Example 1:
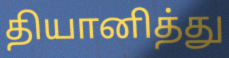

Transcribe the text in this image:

தியானித்து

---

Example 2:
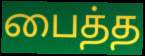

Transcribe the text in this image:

பைத்த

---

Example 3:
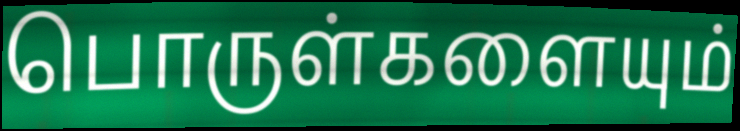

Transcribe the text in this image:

பொருள்களையும்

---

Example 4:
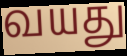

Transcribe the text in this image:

வயது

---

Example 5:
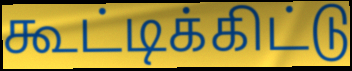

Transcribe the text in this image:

கூட்டிக்கிட்டு